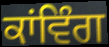
ਕਾਂਵਿੰਗ